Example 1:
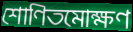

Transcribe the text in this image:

শোণিতমোক্ষণ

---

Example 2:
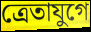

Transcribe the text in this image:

ত্রেতাযুগে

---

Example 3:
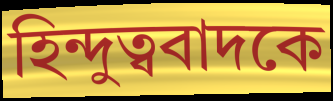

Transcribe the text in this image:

হিন্দুত্ববাদকে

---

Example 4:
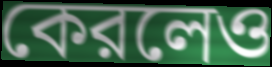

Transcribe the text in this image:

কেরলেও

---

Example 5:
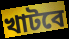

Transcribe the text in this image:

খাটবে